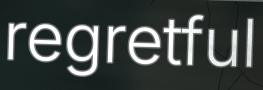
regretful